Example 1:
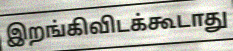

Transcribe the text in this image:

இறங்கிவிடக்கூடாது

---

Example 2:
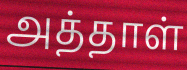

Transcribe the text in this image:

அத்தாள்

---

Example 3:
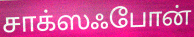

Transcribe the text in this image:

சாக்ஸஃபோன்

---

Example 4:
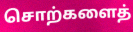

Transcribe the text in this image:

சொற்களைத்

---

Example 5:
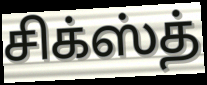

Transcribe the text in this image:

சிக்ஸ்த்